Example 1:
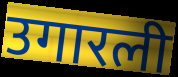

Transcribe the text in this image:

उगारली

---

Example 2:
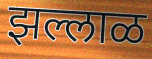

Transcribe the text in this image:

झल्लाळ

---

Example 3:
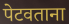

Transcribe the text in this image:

पेटवताना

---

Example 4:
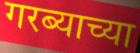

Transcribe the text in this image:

गरब्याच्या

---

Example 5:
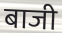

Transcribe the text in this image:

बाजी